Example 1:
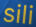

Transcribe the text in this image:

sili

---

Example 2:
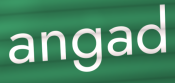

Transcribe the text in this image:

angad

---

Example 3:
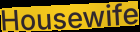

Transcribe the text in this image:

Housewife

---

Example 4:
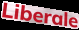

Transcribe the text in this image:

Liberale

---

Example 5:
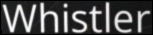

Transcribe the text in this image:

Whistler